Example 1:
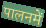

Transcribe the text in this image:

पालनमें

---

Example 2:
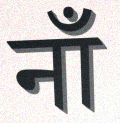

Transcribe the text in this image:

नाँ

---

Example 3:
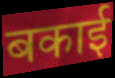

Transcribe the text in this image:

बकाई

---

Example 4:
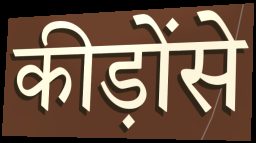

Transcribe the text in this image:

कीड़ोंसे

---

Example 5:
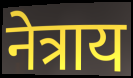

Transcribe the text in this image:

नेत्राय